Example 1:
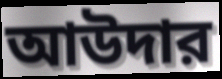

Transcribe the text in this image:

আউদার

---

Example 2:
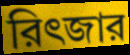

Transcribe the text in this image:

রিৎজার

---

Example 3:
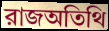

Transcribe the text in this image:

রাজঅতিথি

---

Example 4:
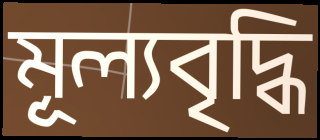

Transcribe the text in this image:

মূল্যবৃদ্ধি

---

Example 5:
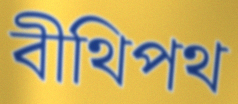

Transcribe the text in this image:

বীথিপথ